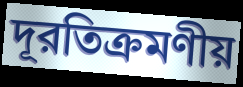
দূরতিক্রমণীয়